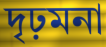
দৃঢ়মনা